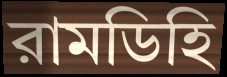
রামডিহি